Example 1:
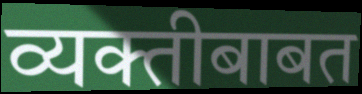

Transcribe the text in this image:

व्यक्तीबाबत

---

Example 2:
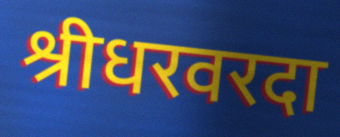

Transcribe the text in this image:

श्रीधरवरदा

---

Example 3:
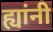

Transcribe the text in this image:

ह्यांनी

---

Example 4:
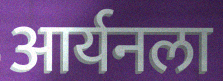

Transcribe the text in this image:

आर्यनला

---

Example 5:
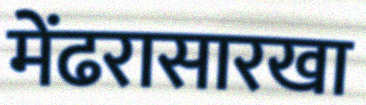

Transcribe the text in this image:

मेंढरासारखा